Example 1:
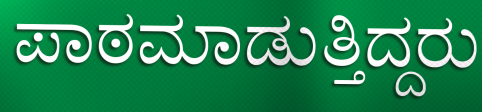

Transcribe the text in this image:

ಪಾಠಮಾಡುತ್ತಿದ್ದರು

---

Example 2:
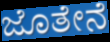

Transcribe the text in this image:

ಜೊತೇನೆ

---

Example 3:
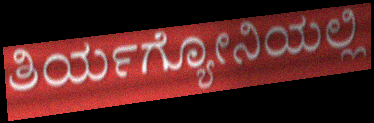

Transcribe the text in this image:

ತಿರ್ಯಗ್ಯೋನಿಯಲ್ಲಿ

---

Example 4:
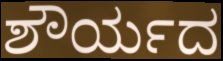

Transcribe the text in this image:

ಶೌರ್ಯದ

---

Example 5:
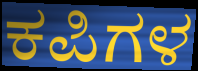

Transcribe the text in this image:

ಕಪಿಗಳ